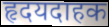
हृदयदाहक